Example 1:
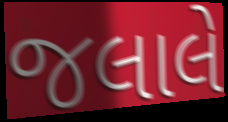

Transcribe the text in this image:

જલાલે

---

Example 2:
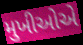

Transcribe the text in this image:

મુખીઓએ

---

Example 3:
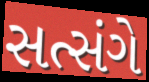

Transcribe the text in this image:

સત્સંગે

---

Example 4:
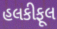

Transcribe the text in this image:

હલકીફૂલ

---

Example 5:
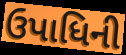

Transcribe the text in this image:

ઉપાધિની